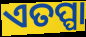
ଏତପ୍ପା